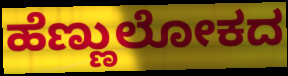
ಹೆಣ್ಣುಲೋಕದ